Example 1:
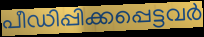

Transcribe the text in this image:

പീഡിപ്പിക്കപ്പെട്ടവർ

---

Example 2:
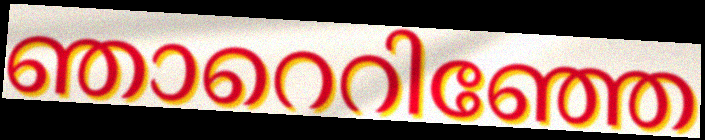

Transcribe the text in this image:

ഞാറെറിഞ്ഞേ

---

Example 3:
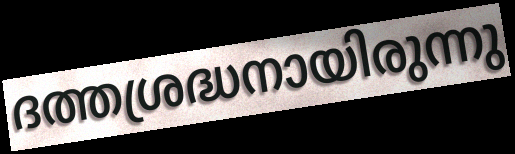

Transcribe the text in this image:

ദത്തശ്രദ്ധനായിരുന്നു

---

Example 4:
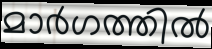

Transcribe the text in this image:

മാർഗത്തിൽ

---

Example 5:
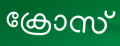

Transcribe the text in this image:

ക്രോസ്